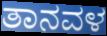
ತಾನವಳ